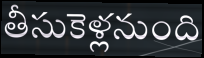
తీసుకెళ్లనుంది